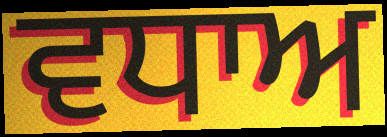
ਵਧਾਅ